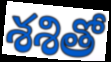
శశితో